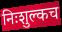
निःशुल्कच